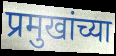
प्रमुखांच्या